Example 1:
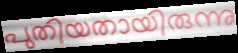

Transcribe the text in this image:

പുതിയതായിരുന്നു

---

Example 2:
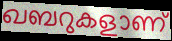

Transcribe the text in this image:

ഖബറുകളാണ്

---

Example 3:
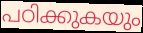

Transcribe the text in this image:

പഠിക്കുകയും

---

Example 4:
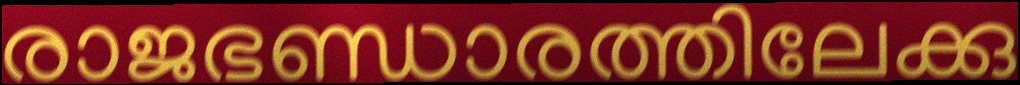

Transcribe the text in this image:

രാജഭണ്ഡാരത്തിലേക്കു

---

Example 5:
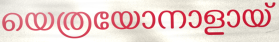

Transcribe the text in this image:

യെത്രയോനാളായ്